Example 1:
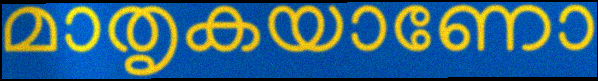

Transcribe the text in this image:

മാതൃകയാണോ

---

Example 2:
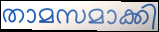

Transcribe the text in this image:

താമസമാക്കി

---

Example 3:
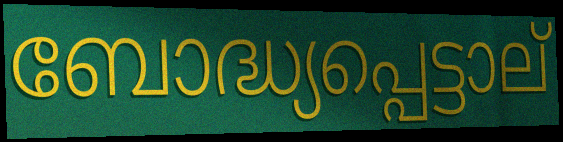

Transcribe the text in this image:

ബോദ്ധ്യപ്പെട്ടാല്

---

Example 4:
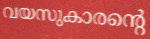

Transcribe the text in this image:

വയസുകാരന്റെ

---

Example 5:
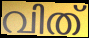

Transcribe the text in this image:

വിത്